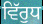
ਵਿੱਰੁਧ